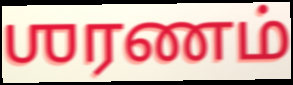
ஶரணம்